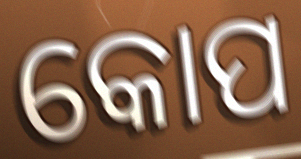
କୋପ